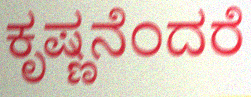
ಕೃಷ್ಣನೆಂದರೆ